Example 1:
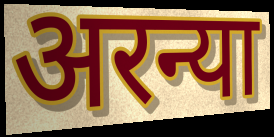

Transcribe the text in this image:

अरन्या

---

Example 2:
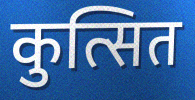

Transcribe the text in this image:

कुत्सित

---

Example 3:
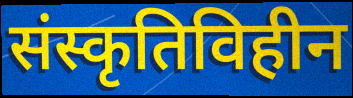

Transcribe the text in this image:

संस्कृतिविहीन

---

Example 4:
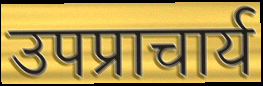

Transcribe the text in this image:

उपप्राचार्य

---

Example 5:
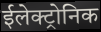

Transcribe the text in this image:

ईलेक्ट्रोनिक